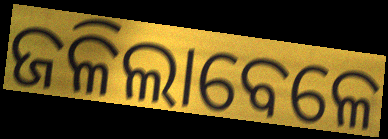
ଜଳିଲାବେଳେ